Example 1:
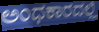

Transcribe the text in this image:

ಅಂಧಕಾರದಲ್ಲಿ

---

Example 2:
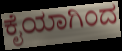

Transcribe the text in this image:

ಕೈಯಾಗಿಂದ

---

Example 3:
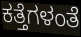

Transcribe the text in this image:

ಕತ್ತೆಗಳಂತೆ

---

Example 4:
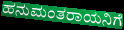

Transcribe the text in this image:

ಹನುಮಂತರಾಯನಿಗೆ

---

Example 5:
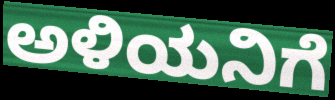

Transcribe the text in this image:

ಅಳಿಯನಿಗೆ